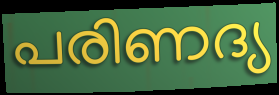
പരിണദ്യ